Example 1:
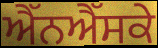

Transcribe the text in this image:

ਐੱਨਐੱਸਕੇ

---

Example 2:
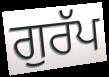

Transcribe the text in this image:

ਗੁਰੱਪ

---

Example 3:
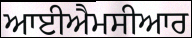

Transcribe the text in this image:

ਆਈਐਮਸੀਆਰ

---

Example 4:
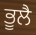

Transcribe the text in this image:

ਭੂਲੈ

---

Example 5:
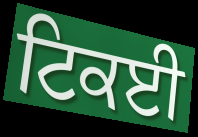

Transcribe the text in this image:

ਟਿਕਈ